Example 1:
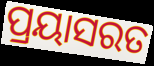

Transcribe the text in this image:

ପ୍ରୟାସରତ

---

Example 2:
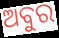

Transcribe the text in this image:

ଅବୁର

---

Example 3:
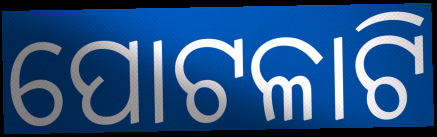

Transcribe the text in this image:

ପୋଟଳାଟି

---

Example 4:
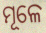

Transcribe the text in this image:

ମୂଳେ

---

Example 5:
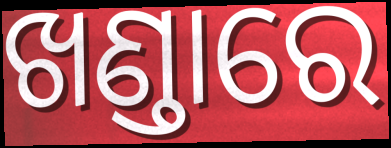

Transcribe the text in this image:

ଖଣ୍ଡାରେ